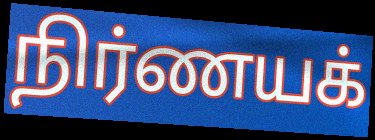
நிர்ணயக்